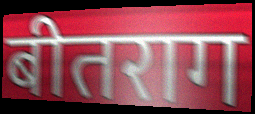
बीतराग